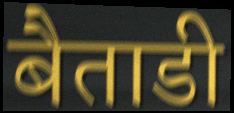
बैताडी